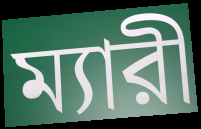
ম্যারী